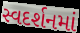
સ્વદર્શનમાં